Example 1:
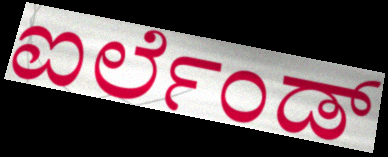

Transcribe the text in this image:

ಐರ್ಲೆಂಡ್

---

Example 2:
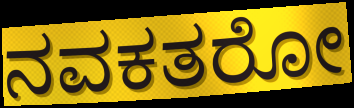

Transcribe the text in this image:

ನವಕತರೋ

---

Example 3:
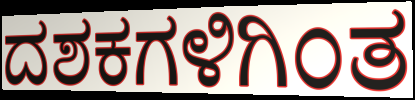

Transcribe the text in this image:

ದಶಕಗಳಿಗಿಂತ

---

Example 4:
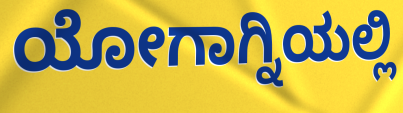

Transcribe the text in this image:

ಯೋಗಾಗ್ನಿಯಲ್ಲಿ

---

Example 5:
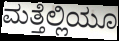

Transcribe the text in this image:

ಮತ್ತೆಲ್ಲಿಯೂ